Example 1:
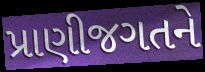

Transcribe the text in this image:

પ્રાણીજગતને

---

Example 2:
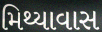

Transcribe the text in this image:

મિથ્યાવાસ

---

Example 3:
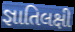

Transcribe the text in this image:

જ્ઞાતિલક્ષી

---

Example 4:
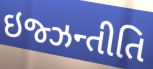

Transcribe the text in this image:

ઇજ્ઝન્તીતિ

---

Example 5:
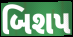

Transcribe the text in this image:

બિશપ